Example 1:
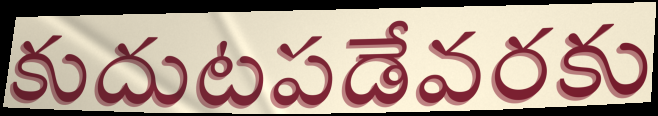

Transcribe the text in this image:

కుదుటపడేవరకు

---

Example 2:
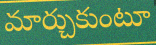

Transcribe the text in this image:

మార్చుకుంటూ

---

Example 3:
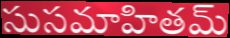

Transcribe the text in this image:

సుసమాహితమ్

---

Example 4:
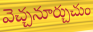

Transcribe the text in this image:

వెచ్చనూర్చుచుం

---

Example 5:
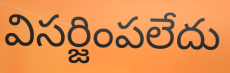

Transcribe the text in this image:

విసర్జింపలేదు